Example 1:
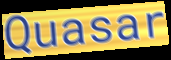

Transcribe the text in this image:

Quasar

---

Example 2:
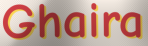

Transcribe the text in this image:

Ghaira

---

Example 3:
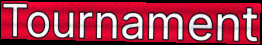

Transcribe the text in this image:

Tournament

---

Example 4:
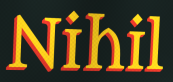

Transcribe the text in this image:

Nihil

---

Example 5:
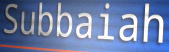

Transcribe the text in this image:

Subbaiah